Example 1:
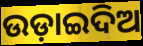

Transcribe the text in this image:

ଉଡ଼ାଇଦିଅ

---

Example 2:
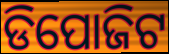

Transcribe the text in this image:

ଡିପୋଜିଟ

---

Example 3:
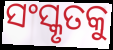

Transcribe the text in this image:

ସଂସ୍କୃତକୁ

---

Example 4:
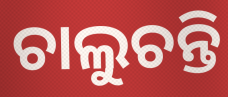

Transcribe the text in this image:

ଚାଲୁଚନ୍ତି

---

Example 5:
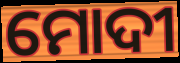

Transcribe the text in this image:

ମୋଦୀ